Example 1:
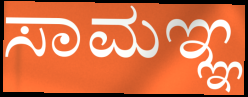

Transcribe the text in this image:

ಸಾಮಞ್ಞ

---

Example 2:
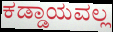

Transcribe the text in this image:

ಕಡ್ಡಾಯವಲ್ಲ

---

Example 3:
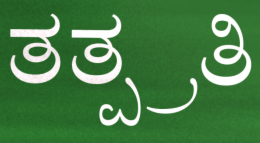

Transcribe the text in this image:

ತತ್ಪ್ರತಿ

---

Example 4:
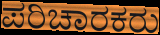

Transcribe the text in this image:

ಪರಿಚಾರಕರು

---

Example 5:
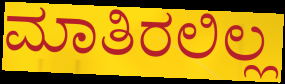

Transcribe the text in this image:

ಮಾತಿರಲಿಲ್ಲ